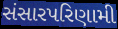
સંસારપરિણામી